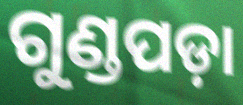
ଗୁଣ୍ଡପଡ଼ା